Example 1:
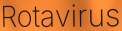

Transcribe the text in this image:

Rotavirus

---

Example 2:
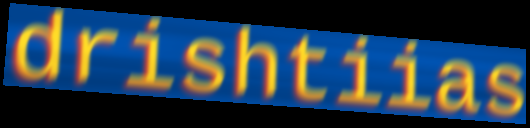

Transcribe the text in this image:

drishtiias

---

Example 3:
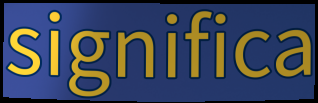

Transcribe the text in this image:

significa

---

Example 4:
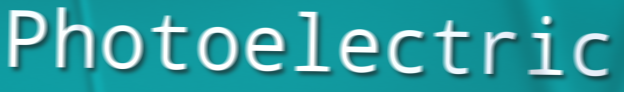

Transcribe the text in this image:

Photoelectric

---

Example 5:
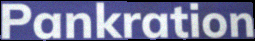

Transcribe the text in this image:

Pankration